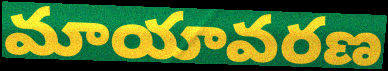
మాయావరణ